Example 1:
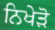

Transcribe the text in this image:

ਨਿਖੇੜੋ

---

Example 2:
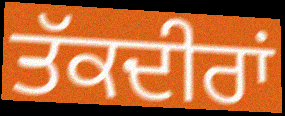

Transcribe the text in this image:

ਤੱਕਦੀਰਾਂ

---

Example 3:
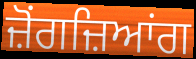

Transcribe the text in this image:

ਜ਼ੋਂਗਜ਼ਿਆਂਗ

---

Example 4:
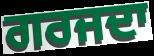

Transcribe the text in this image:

ਗਰਜਦਾ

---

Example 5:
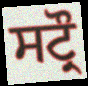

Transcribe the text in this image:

ਸਟ੍ਰੌ